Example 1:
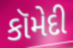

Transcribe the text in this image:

કૉમેદી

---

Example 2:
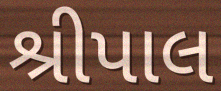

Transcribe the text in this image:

શ્રીપાલ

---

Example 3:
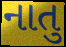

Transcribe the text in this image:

નાતુ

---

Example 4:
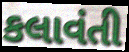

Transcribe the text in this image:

કલાવંતી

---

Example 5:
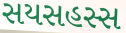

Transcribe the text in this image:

સયસહસ્સ